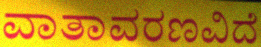
ವಾತಾವರಣವಿದೆ